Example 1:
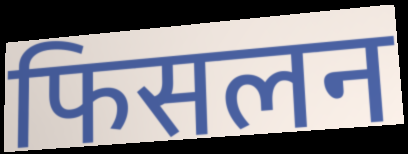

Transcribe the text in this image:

फिसलन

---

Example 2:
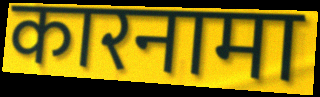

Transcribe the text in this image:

कारनामा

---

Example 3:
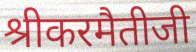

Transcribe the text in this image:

श्रीकरमैतीजी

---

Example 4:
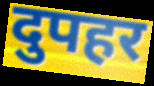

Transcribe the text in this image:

दुपहर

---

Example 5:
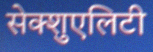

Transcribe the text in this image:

सेक्शुएलिटी